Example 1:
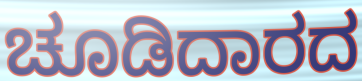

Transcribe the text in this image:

ಚೂಡಿದಾರದ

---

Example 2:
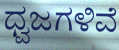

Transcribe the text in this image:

ಧ್ವಜಗಳಿವೆ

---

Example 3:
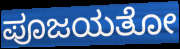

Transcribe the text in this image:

ಪೂಜಯತೋ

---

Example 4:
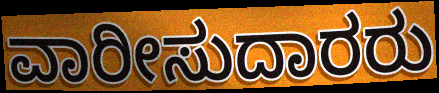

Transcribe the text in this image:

ವಾರೀಸುದಾರರು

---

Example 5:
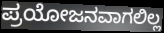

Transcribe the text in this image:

ಪ್ರಯೋಜನವಾಗಲಿಲ್ಲ